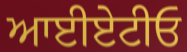
ਆਈਏਟੀਓ